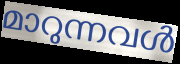
മാറുന്നവൾ